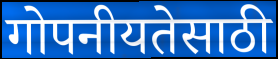
गोपनीयतेसाठी